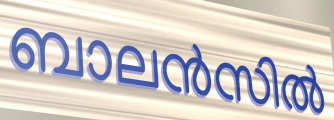
ബാലൻസിൽ